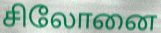
சிலோனை